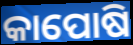
କାପୋଷି